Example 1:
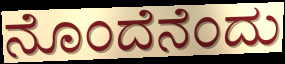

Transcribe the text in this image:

ನೊಂದೆನೆಂದು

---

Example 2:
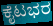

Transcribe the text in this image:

ಕೈಟಭರ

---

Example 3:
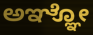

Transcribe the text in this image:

ಅಞ್ಞೋ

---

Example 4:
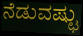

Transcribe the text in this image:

ನೆಡುವಷ್ಟು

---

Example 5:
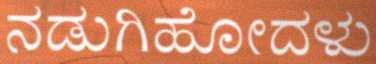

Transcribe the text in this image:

ನಡುಗಿಹೋದಳು